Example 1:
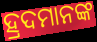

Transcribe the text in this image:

ହ୍ରଦମାନଙ୍କ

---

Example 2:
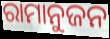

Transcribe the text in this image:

ରାମାନୁଜନ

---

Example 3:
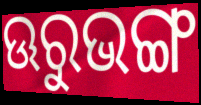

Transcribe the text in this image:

ଊରୁଭଙ୍ଗ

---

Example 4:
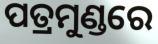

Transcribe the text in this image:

ପତ୍ରମୁଣ୍ଡରେ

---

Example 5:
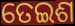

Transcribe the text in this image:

ତେଇଶ